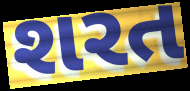
શરત